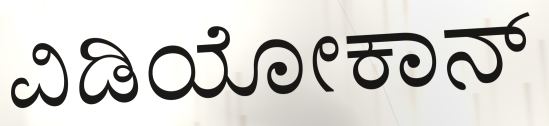
ವಿಡಿಯೋಕಾನ್